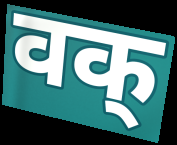
वक्